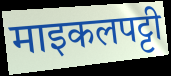
माइकलपट्टी